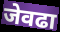
जेवढा